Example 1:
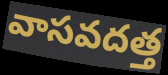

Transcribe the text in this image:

వాసవదత్త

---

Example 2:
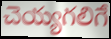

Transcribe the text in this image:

చెయ్యగలిగే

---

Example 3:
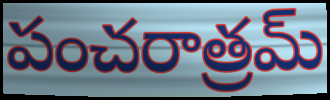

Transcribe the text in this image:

పంచరాత్రమ్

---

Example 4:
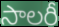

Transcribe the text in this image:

సాలరీ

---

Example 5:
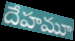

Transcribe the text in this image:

దేహమూ